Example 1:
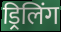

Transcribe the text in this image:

ड्रिलिंग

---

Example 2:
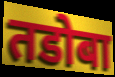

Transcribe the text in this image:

तडोबा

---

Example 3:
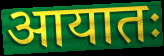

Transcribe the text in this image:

आयातः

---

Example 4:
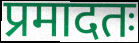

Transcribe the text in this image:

प्रमादतः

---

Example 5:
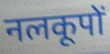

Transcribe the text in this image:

नलकूपों